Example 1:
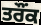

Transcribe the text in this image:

ਤਰੌਂਕ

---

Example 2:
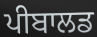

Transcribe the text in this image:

ਪੀਬਾਲਡ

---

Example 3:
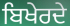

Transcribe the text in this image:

ਬਿਖੇਰਦੇ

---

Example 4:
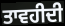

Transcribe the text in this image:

ਤਾਵਹੀਦੀ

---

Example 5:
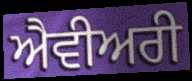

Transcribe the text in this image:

ਐਵੀਅਰੀ